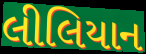
લીલિયાન